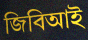
জিবিআই